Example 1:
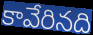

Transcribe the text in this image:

కావేరినది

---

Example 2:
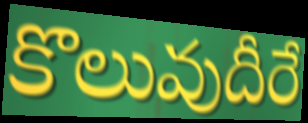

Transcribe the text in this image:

కొలువుదీరే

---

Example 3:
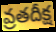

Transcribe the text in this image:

వ్రతదీక్ష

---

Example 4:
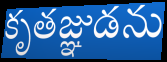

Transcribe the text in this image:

కృతజ్ఞుడను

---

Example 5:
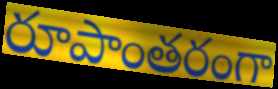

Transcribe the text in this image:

రూపాంతరంగా